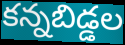
కన్నబిడ్డల